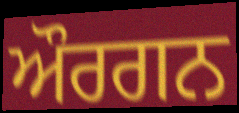
ਔਰਗਨ